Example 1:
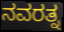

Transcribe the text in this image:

ನವರತ್ನ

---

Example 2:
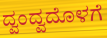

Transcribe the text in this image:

ದ್ವಂದ್ವದೊಳಗೆ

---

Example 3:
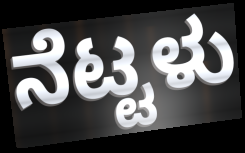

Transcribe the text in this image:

ನೆಟ್ಟಳು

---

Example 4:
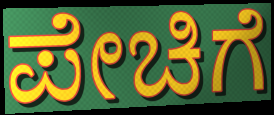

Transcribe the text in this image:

ಪೇಚಿಗೆ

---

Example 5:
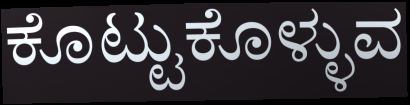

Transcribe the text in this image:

ಕೊಟ್ಟುಕೊಳ್ಳುವ